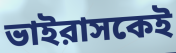
ভাইরাসকেই